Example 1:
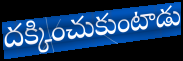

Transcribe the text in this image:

దక్కించుకుంటాడు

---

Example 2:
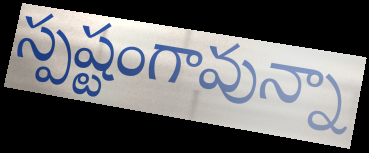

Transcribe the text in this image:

స్పష్టంగావున్నా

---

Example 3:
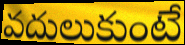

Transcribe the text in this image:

వదులుకుంటే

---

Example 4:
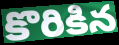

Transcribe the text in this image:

కొరికిన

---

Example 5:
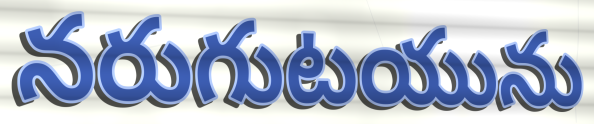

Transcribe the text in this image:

నరుగుటయును